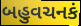
બહુવચનકં